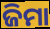
ଜିମା